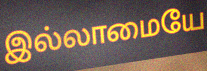
இல்லாமையே